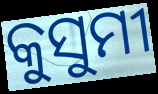
କୁସୁମୀ